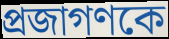
প্রজাগণকে